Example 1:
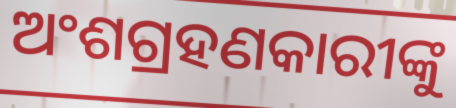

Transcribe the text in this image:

ଅଂଶଗ୍ରହଣକାରୀଙ୍କୁ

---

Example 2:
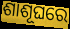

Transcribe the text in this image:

ଶାଶୂଘରେ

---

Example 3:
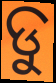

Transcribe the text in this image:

ଡୁ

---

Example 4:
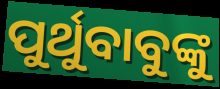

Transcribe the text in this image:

ପୁର୍ଥୁବାବୁଙ୍କୁ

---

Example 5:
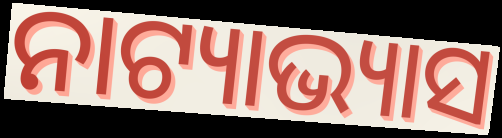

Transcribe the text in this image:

ନାଟ୍ୟାଭ୍ୟାସ